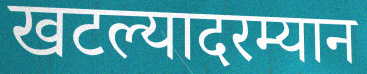
खटल्यादरम्यान